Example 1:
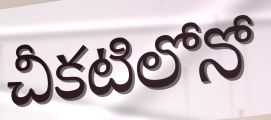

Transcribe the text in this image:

చీకటిలోనో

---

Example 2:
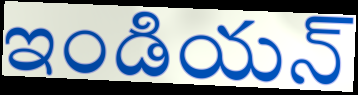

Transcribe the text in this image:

ఇండియన్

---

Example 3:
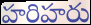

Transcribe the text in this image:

హరిహరు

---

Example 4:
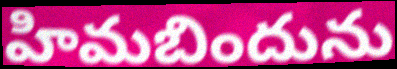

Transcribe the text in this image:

హిమబిందును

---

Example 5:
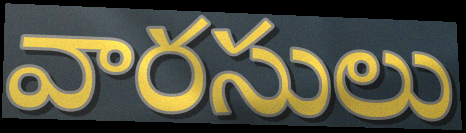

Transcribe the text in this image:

వారసులు